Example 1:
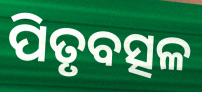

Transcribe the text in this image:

ପିତୃବତ୍ସଳ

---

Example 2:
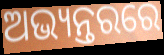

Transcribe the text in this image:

ଅଭ୍ୟନ୍ତରରେ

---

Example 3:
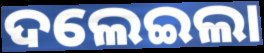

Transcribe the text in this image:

ଦଲେଇଲା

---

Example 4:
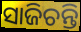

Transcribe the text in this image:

ସାଜିଚନ୍ତି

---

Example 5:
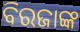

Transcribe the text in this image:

ବିରଜାଙ୍କ